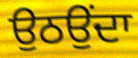
ਉਠਉਂਦਾ